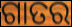
ଗାତର